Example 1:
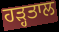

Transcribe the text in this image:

ਹੜ੍ਹਤਾਲ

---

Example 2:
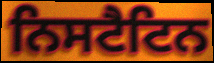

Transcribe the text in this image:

ਨਿਸਟੈਟਿਨ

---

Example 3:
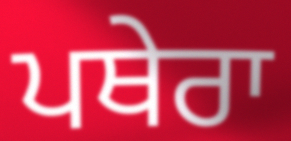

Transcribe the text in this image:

ਪਥੇਰਾ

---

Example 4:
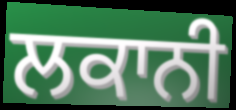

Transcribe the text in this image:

ਲਕਾਨੀ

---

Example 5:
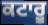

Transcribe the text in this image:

ਕਟਾਰੂ